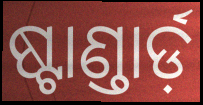
ଷ୍ଟାଣ୍ଡାର୍ଡ଼